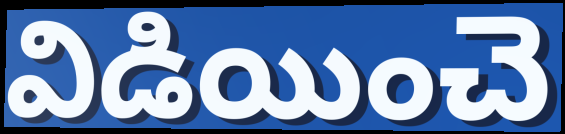
విడియించె